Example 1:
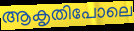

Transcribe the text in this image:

ആകൃതിപോലെ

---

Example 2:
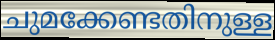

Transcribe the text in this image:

ചുമക്കേണ്ടതിനുള്ള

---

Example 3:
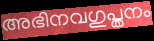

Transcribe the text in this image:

അഭിനവഗുപ്തനം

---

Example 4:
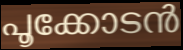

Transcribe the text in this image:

പൂക്കോടൻ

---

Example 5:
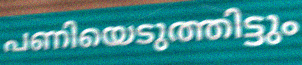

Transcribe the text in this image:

പണിയെടുത്തിട്ടും